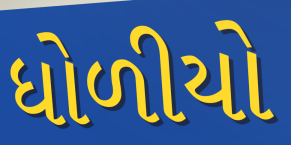
ધોળીયો